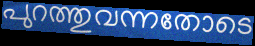
പുറത്തുവന്നതോടെ